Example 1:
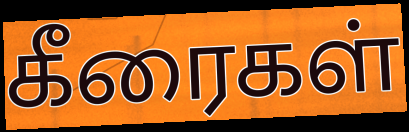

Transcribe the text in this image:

கீரைகள்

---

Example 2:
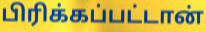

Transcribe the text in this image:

பிரிக்கப்பட்டான்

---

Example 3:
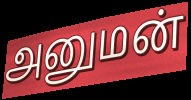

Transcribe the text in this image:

அனுமன்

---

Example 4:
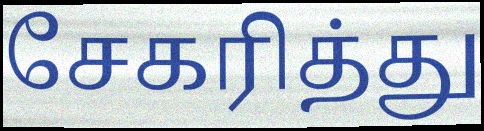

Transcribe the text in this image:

சேகரித்து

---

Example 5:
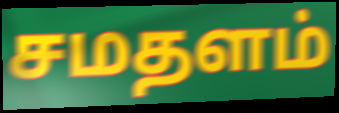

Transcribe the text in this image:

சமதளம்